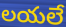
లయలే